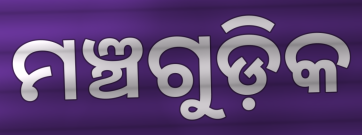
ମଞ୍ଚଗୁଡ଼ିକ